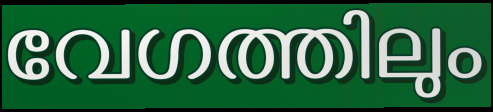
വേഗത്തിലും